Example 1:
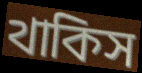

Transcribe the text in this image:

থাকিস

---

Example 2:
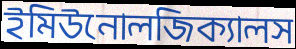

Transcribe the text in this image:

ইমিউনোলজিক্যালস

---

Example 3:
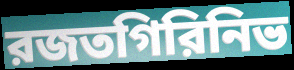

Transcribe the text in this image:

রজতগিরিনিভ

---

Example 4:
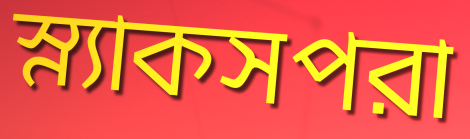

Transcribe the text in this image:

স্ন্যাকসপরা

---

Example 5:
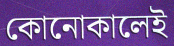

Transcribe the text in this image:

কোনোকালেই